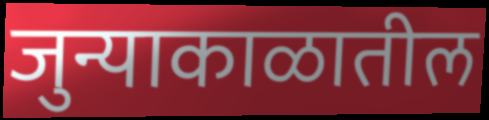
जुन्याकाळातील